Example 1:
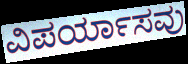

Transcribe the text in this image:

ವಿಪರ್ಯಾಸವು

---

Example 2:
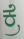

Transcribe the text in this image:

ಕ್ರೆ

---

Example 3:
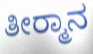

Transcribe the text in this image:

ತೀರ‍್ಮಾನ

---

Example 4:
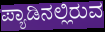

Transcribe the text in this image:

ಪ್ಯಾಡಿನಲ್ಲಿರುವ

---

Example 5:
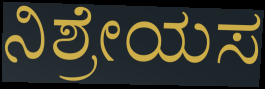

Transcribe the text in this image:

ನಿಶ್ರೇಯಸ